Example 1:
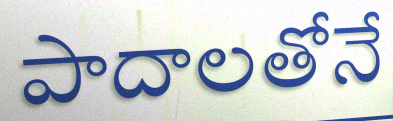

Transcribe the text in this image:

పాదాలతోనే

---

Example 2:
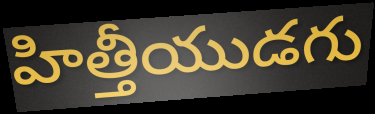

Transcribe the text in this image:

హిత్తీయుడగు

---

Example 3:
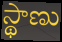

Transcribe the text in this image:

స్థాణు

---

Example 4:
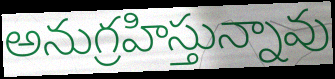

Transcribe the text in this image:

అనుగ్రహిస్తున్నావు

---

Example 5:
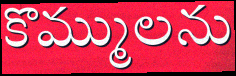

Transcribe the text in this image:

కొమ్ములను